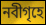
নবীগৃহে